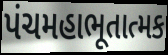
પંચમહાભૂતાત્મક